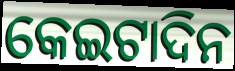
କେଇଟାଦିନ